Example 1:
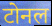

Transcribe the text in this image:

टोनल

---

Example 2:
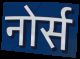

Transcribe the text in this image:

नोर्स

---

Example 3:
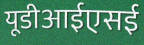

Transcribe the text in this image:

यूडीआईएसई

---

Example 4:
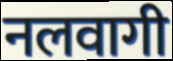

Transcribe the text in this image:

नलवागी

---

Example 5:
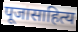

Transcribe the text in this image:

पूजासाहित्य